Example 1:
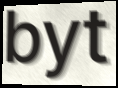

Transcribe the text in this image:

byt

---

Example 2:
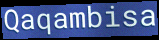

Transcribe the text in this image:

Qaqambisa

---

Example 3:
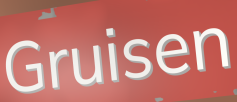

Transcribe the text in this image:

Gruisen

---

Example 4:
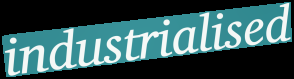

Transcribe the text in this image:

industrialised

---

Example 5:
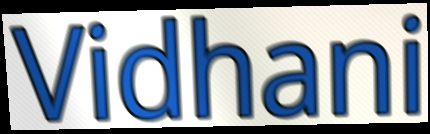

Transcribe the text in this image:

Vidhani